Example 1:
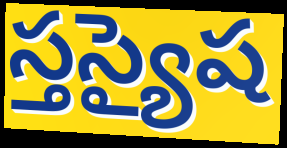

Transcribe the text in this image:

స్తస్యైష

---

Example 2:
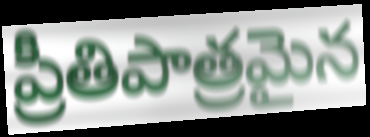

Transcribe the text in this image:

ప్రీతిపాత్రమైన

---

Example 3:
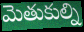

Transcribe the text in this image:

మెతుకుల్ని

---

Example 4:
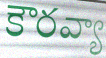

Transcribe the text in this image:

కౌరవ్యా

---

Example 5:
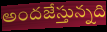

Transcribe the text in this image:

అందజేస్తున్నది